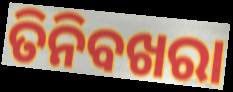
ତିନିବଖରା